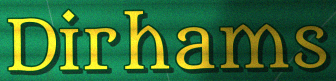
Dirhams